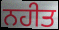
ਨਹੀਤ